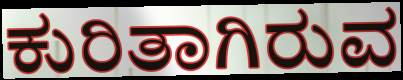
ಕುರಿತಾಗಿರುವ